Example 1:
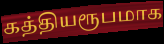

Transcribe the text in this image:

கத்தியரூபமாக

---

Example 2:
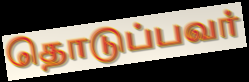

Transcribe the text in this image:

தொடுப்பவர்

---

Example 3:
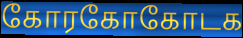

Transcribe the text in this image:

கோரகோகோடக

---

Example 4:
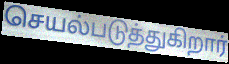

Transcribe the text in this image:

செயல்படுத்துகிறார்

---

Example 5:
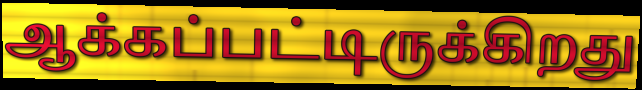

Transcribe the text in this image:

ஆக்கப்பட்டிருக்கிறது